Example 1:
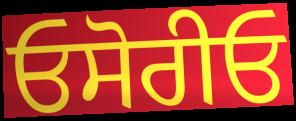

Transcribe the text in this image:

ਓਸੋਰੀਓ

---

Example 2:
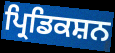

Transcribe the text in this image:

ਪ੍ਰਿਡਿਕਸ਼ਨ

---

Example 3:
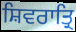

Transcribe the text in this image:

ਸ਼ਿਵਰਾਤ੍ਰਿ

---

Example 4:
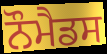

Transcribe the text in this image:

ਨੌਮੈਡਸ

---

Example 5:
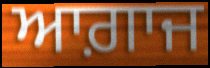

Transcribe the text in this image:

ਆਗ਼ਾਜ